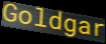
Goldgar